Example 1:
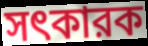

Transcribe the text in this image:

সৎকারক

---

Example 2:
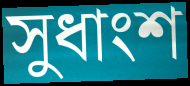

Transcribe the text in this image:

সুধাংশ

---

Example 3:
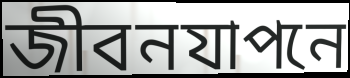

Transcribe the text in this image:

জীবনযাপনে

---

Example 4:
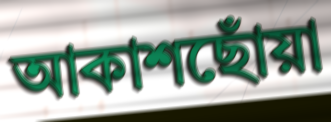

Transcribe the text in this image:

আকাশছোঁয়া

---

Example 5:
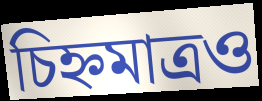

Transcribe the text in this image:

চিহ্নমাত্রও